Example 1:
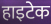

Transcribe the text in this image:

हाइटेक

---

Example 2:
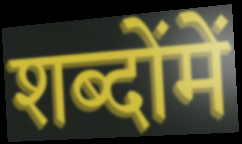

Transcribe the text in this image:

शब्दोंमें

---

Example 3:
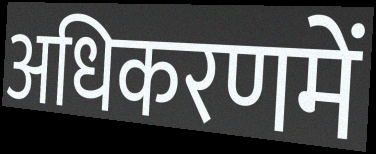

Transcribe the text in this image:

अधिकरणमें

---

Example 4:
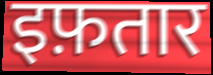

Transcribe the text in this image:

इफ़तार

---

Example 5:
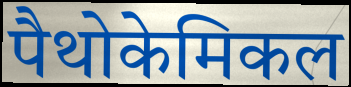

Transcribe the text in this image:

पैथोकेमिकल